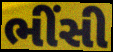
ભીંસી